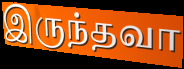
இருந்தவா